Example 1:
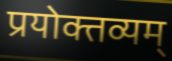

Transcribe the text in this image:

प्रयोक्तव्यम्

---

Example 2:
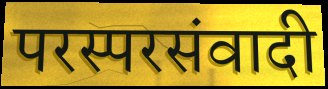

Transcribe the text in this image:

परस्परसंवादी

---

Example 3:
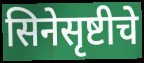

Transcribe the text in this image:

सिनेसृष्टीचे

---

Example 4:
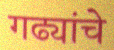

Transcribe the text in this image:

गढ्यांचे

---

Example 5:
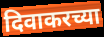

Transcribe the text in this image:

दिवाकरच्या